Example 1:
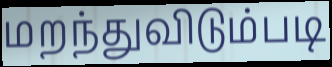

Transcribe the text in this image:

மறந்துவிடும்படி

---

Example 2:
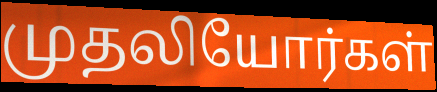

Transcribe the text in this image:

முதலியோர்கள்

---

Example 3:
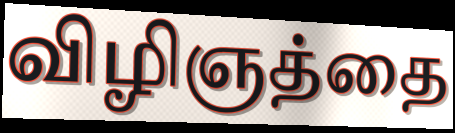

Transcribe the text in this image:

விழிஞத்தை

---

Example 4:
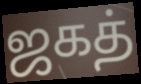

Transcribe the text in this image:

ஜகத்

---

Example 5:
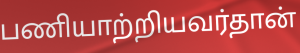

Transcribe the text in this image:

பணியாற்றியவர்தான்